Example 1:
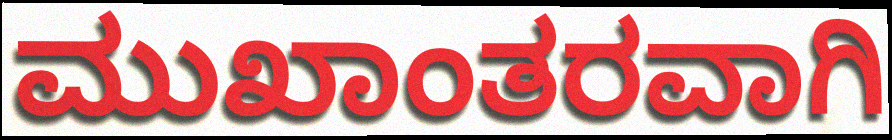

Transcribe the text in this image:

ಮುಖಾಂತರವಾಗಿ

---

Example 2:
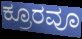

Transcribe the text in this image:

ಕ್ರೂರವೂ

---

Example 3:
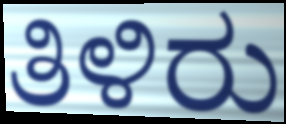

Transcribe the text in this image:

ತಿಳಿರು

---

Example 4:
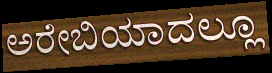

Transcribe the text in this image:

ಅರೇಬಿಯಾದಲ್ಲೂ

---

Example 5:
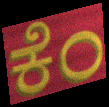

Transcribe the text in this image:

ಕೆಂ